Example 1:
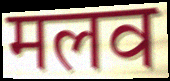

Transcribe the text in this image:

मलव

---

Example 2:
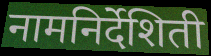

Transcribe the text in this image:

नामनिर्देशिती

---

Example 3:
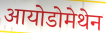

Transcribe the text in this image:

आयोडोमेथेन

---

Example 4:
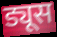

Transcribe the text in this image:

ड्यूस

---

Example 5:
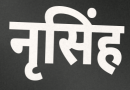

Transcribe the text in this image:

नृसिंह